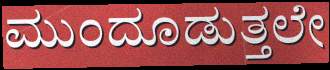
ಮುಂದೂಡುತ್ತಲೇ